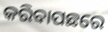
କରିବାପଛରେ